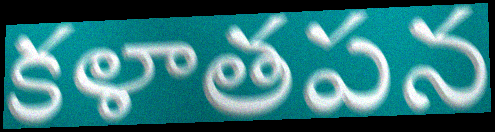
కళాతపన